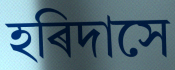
হৰিদাসে